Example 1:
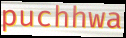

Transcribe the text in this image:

puchhwa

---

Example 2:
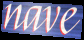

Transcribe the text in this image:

nave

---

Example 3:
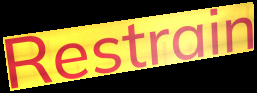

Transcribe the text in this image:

Restrain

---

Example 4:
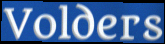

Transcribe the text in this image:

Volders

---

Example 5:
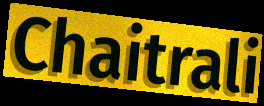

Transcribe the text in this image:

Chaitrali